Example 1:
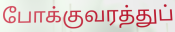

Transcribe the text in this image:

போக்குவரத்துப்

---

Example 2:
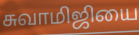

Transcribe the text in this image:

சுவாமிஜியை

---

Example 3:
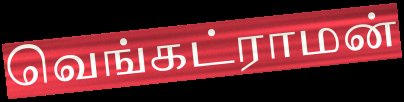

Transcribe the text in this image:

வெங்கட்ராமன்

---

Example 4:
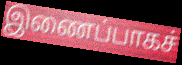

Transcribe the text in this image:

இணைப்பாகச்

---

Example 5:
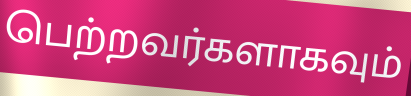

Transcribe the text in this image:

பெற்றவர்களாகவும்